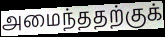
அமைந்ததற்குக்